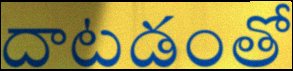
దాటడంతో